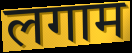
लगाम